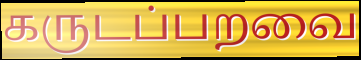
கருடப்பறவை